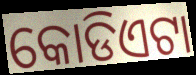
କୋଡିଏଟା